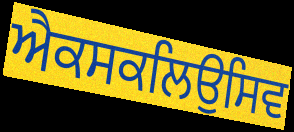
ਐਕਸਕਲਿਉਸਿਵ